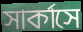
সার্কাসে